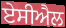
ਏਸੀਐਲ